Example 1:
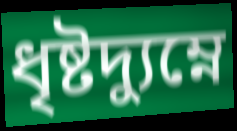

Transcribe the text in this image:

ধৃষ্টদ্যুম্নে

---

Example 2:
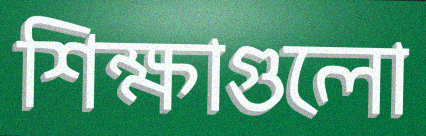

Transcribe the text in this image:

শিক্ষাগুলো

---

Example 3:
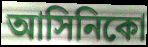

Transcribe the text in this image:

আসিনিকো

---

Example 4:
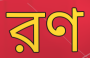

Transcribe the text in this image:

রণ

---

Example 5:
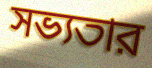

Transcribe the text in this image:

সভ্যতার